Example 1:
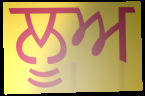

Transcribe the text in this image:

ਲੂਅ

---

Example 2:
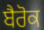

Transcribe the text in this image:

ਬੈਰੋਕ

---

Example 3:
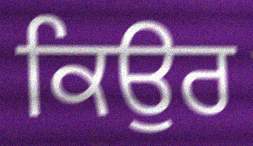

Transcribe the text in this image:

ਕਿਉਰ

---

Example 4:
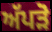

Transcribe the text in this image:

ਅੱਪੜੋ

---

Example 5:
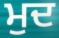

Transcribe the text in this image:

ਮੁਦ